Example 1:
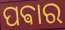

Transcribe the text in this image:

ପଵାର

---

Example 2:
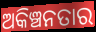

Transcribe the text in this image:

ଅକିଞ୍ଚନତାର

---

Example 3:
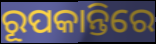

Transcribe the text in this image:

ରୂପକାନ୍ତିରେ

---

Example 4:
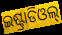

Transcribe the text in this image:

ଇଷ୍ଟ୍ରାଡିଓଲ୍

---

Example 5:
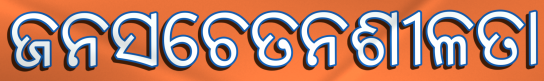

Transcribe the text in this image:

ଜନସଚେତନଶୀଳତା